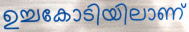
ഉച്ചകോടിയിലാണ്